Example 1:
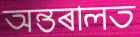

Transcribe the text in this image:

অন্তৰালত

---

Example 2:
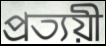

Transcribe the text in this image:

প্ৰত্যয়ী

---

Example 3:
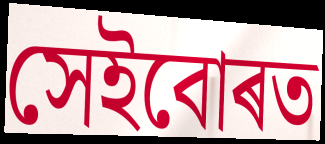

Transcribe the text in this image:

সেইবোৰত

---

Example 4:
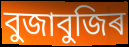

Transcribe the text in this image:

বুজাবুজিৰ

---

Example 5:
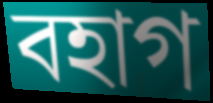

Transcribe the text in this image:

বহাগ